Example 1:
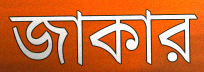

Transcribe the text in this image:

জাকার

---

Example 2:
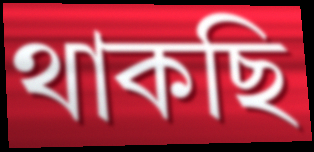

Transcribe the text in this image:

থাকছি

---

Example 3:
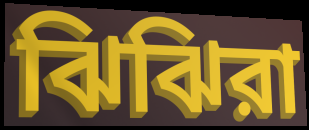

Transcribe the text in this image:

ঝিঝিরা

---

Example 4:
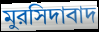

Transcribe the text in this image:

মুরসিদাবাদ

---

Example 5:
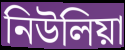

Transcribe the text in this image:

নিউলিয়া